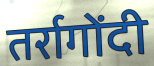
तर्रागोंदी